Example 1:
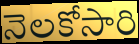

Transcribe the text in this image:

నెలకోసారి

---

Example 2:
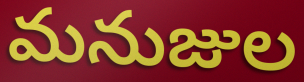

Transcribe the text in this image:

మనుజుల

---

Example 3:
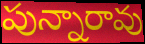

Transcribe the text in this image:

పున్నారావు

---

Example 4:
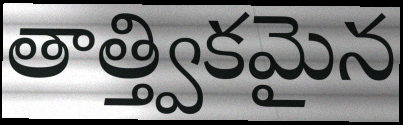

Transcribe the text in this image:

తాత్త్వికమైన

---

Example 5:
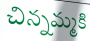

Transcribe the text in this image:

చిన్నమ్మకి